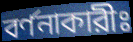
বর্ণনাকারীঃ